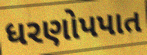
ધરણોપપાત